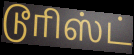
டூரிஸ்ட்